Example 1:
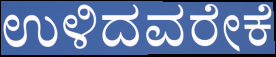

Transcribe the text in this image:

ಉಳಿದವರೇಕೆ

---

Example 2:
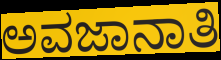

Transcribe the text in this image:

ಅವಜಾನಾತಿ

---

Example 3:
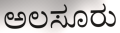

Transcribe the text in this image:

ಅಲಸೂರು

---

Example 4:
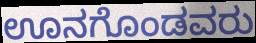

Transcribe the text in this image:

ಊನಗೊಂಡವರು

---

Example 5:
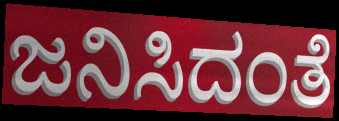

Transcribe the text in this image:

ಜನಿಸಿದಂತೆ